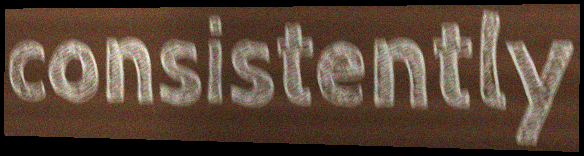
consistently